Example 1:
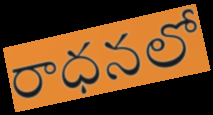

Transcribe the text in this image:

రాధనలో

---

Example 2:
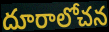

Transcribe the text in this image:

దూరాలోచన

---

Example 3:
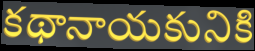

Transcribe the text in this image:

కథానాయకునికి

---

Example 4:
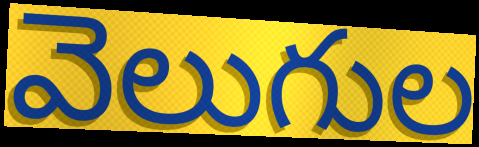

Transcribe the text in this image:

వెలుగుల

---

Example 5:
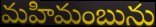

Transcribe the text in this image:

మహిమంబును